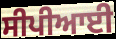
ਸੀਪੀਆਈ